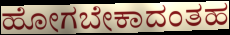
ಹೋಗಬೇಕಾದಂತಹ